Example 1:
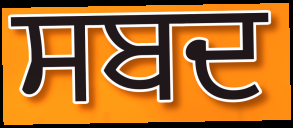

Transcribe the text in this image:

ਸਬਦ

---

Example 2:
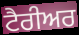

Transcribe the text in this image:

ਟੈਰੀਅਰ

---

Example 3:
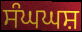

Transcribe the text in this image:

ਸੰਘਘਸ਼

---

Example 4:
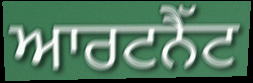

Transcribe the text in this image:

ਆਰਟਨੈੱਟ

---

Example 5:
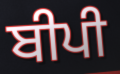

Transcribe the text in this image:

ਬੀਪੀ